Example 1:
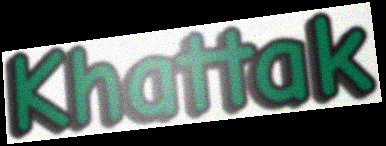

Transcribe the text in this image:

Khattak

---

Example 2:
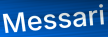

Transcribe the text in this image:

Messari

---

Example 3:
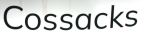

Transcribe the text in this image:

Cossacks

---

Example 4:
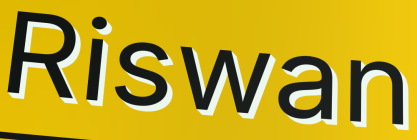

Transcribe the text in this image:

Riswan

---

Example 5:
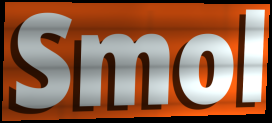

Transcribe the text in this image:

Smol